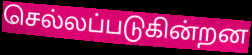
செல்லப்படுகின்றன